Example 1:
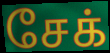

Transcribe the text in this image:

சேக்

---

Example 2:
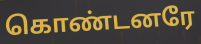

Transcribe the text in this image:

கொண்டனரே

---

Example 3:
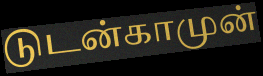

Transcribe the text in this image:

டுடன்காமுன்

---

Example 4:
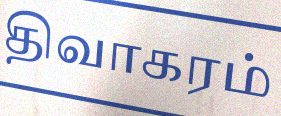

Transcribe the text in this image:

திவாகரம்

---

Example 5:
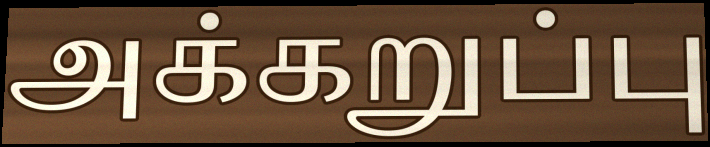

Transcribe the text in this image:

அக்கறுப்பு